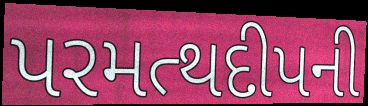
પરમત્થદીપની